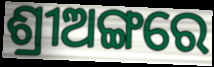
ଶ୍ରୀଅଙ୍ଗରେ